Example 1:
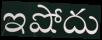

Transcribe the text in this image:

ఇషోదు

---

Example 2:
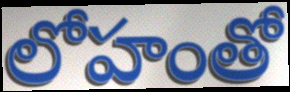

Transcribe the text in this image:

లోహంతో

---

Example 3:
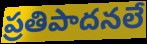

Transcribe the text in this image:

ప్రతిపాదనలే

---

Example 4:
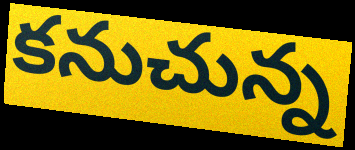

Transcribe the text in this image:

కనుచున్న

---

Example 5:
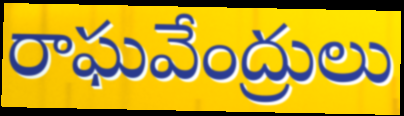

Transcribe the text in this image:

రాఘవేంద్రులు